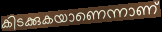
കിടക്കുകയാണെന്നാണ്